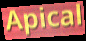
Apical